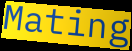
Mating